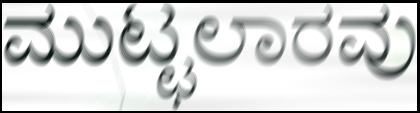
ಮುಟ್ಟಲಾರವು